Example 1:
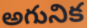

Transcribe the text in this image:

అగునిక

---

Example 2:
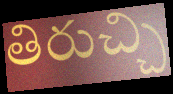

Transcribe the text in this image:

తిరుచ్చి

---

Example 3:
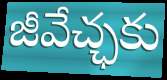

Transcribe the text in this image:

జీవేచ్ఛకు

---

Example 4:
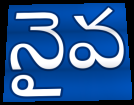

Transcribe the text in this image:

నైవ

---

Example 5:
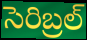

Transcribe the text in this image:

సెరిబ్రల్